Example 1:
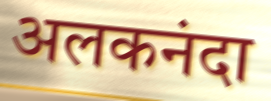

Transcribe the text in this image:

अलकनंदा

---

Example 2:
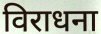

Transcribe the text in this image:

विराधना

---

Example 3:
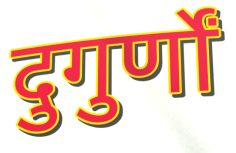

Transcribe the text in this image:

दुगुर्णों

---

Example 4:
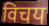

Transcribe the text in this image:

विचय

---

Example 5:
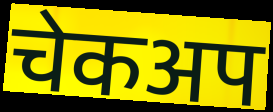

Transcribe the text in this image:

चेकअप